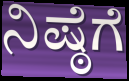
ನಿಷ್ಠೆಗೆ